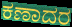
ಕಣಾದರ